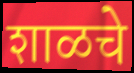
शाळचे